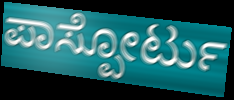
ಪಾಸ್ಪೋರ್ಟು